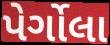
પેર્ગોલા